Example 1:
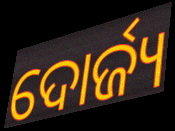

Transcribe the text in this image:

ଦୋର୍ଜ୍ୟ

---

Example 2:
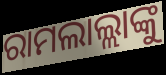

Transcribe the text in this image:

ରାମଲାଲ୍ଲାଙ୍କୁ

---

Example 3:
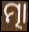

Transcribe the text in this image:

ତ୍ମା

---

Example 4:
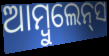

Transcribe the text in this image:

ଆମ୍ବୁଲେନ୍‌ସ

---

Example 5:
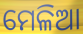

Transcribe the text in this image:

ମେଳିଆ